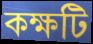
কক্ষটি